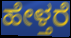
ಹೇಳ್ತರೆ